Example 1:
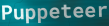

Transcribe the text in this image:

Puppeteer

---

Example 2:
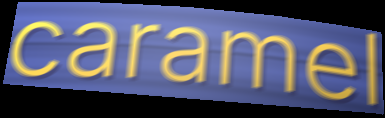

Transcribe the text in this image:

caramel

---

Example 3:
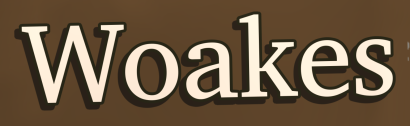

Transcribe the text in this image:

Woakes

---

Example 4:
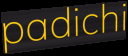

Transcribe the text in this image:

padichi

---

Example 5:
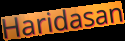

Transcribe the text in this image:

Haridasan